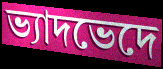
ভ্যাদভেদে